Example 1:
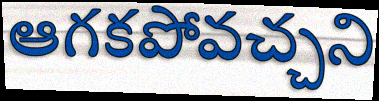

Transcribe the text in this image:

ఆగకపోవచ్చని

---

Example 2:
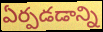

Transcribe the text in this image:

ఏర్పడడాన్ని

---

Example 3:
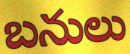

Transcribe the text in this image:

బనులు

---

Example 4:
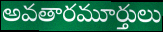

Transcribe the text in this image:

అవతారమూర్తులు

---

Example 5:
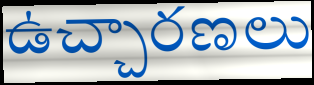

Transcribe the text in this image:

ఉచ్చారణలు